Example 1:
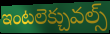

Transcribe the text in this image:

ఇంటలెక్చువల్స్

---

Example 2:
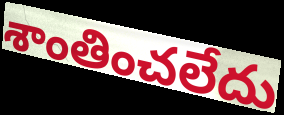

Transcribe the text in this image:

శాంతించలేదు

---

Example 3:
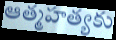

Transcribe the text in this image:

ఆత్మహత్యకు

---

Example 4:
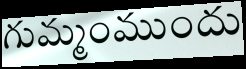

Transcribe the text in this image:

గుమ్మంముందు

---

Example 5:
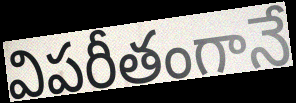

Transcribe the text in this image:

విపరీతంగానే